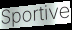
Sportive